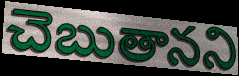
చెబుతానని